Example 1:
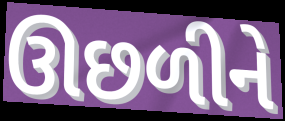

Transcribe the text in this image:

ઊછળીને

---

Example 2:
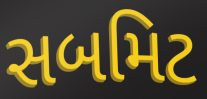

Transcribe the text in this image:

સબમિટ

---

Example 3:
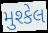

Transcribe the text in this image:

મુશ્કેલ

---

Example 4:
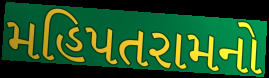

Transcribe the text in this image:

મહિપતરામનો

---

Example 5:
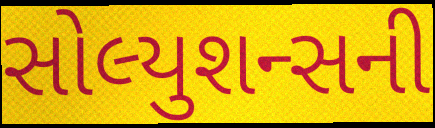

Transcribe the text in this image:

સોલ્યુશન્સની